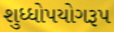
શુધ્ધોપયોગરૂપ